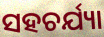
ସହଚର୍ଯ୍ୟା